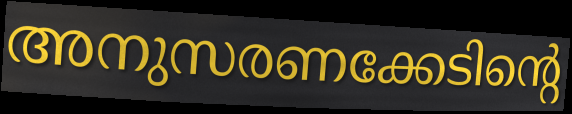
അനുസരണക്കേടിന്റെ